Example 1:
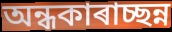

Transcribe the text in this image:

অন্ধকাৰাচ্ছন্ন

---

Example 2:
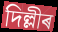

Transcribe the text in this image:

দিল্লীৰ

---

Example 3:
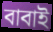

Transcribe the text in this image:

বাবাই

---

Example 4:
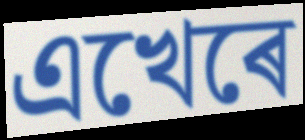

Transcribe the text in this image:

এখেৰে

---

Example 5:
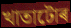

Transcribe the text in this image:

খাতাটোৰ